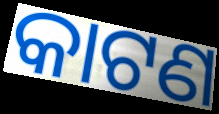
କାଟଣ